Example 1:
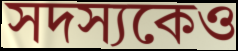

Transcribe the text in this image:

সদস্যকেও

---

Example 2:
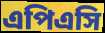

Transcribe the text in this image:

এপিএসি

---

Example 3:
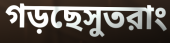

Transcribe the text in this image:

গড়ছেসুতরাং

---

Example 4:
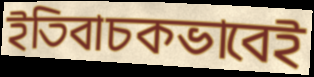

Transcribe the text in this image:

ইতিবাচকভাবেই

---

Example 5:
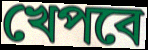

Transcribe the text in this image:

খেপবে